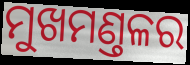
ମୁଖମଣ୍ତଳର